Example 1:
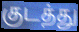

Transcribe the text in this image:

குடத்து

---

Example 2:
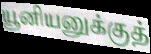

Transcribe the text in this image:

யூனியனுக்குத்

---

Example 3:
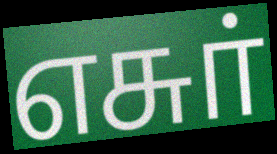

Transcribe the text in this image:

எசுர்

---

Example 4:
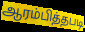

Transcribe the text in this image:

ஆரம்பித்தபடி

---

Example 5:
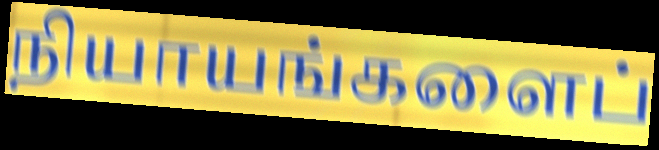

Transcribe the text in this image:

நியாயங்களைப்